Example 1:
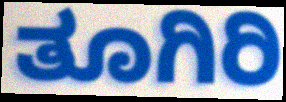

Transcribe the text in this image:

ತೂಗಿರಿ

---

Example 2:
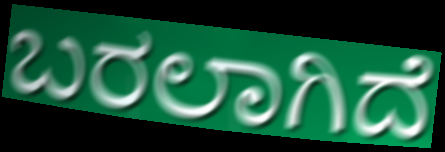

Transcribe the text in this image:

ಬರಲಾಗಿದೆ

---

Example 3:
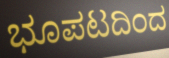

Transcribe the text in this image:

ಭೂಪಟದಿಂದ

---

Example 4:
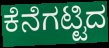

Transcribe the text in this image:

ಕೆನೆಗಟ್ಟಿದ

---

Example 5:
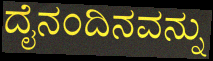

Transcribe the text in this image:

ದೈನಂದಿನವನ್ನು